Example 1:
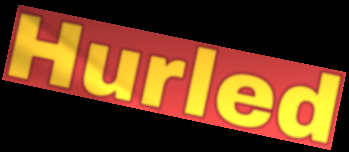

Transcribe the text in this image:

Hurled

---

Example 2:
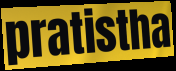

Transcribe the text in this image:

pratistha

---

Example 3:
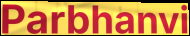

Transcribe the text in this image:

Parbhanvi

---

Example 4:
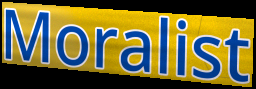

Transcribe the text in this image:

Moralist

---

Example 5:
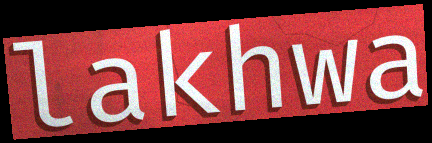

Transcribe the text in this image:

lakhwa